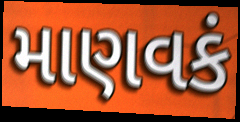
માણવકં